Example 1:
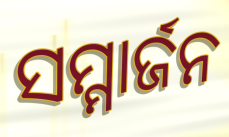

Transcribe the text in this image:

ସମ୍ମାର୍ଜନ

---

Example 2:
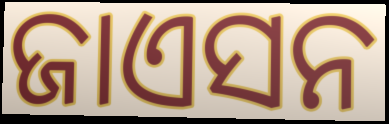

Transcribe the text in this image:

ଜାଏସନ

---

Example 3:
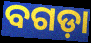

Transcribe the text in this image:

ବଗଡ଼ା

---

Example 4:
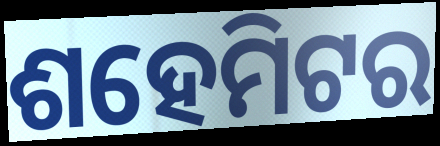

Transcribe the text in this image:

ଶହେମିଟର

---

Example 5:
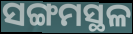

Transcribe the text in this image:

ସଙ୍ଗମସ୍ଥଳ